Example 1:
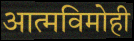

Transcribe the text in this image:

आत्मविमोही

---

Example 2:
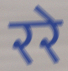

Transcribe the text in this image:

ररे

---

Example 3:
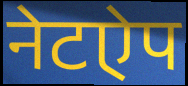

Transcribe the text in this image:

नेटऐप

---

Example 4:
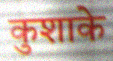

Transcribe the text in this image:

कुशाके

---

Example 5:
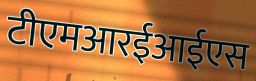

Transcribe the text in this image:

टीएमआरईआईएस